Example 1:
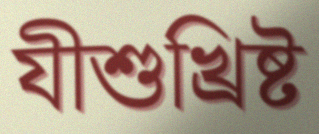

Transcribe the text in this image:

যীশুখ্রিষ্ট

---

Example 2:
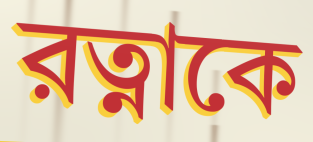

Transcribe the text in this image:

রত্নাকে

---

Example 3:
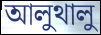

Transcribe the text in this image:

আলুথালু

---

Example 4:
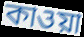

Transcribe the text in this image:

কাওয়া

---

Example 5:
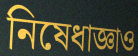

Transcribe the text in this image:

নিষেধাজ্ঞাও